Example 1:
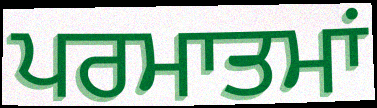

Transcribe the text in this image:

ਪਰਮਾਤਮਾਂ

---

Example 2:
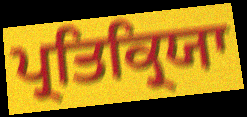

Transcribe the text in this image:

ਪ੍ਰਤਿਕ੍ਰਿਯਾ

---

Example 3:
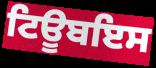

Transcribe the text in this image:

ਟਿਊਬਇਸ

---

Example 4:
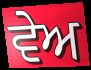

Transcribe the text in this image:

ਵੇਅ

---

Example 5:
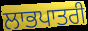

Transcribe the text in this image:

ਲਾਭਪਾਤਰੀ